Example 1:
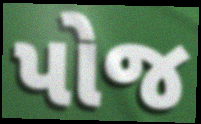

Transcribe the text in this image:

પોજ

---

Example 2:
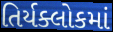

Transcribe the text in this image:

તિર્યક્લોકમાં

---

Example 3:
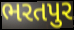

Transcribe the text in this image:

ભરતપુર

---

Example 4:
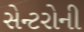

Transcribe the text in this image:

સેન્ટરોની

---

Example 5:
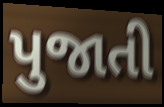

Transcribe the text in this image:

પુજાતી